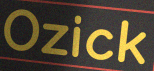
Ozick